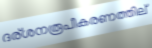
ദര്ശനരൂപീകരണത്തില്